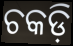
ଚକଡ଼ି